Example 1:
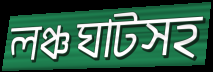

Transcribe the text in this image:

লঞ্চঘাটসহ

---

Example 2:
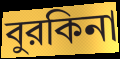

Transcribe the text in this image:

বুরকিনা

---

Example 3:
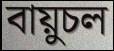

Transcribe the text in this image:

বায়ুচল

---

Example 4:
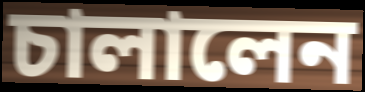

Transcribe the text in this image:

চালালেন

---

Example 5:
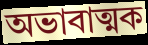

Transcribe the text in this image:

অভাবাত্মক